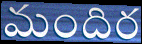
మందిర